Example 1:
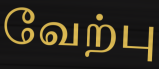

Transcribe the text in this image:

வேற்பு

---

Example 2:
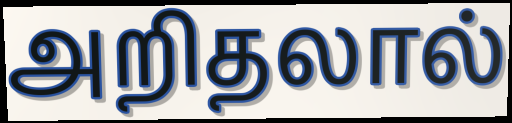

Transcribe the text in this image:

அறிதலால்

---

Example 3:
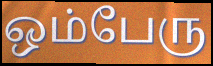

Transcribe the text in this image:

ஒம்பேரு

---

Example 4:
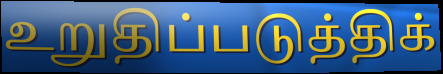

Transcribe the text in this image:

உறுதிப்படுத்திக்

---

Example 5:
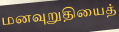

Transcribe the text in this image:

மனவுறுதியைத்